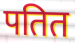
पतित